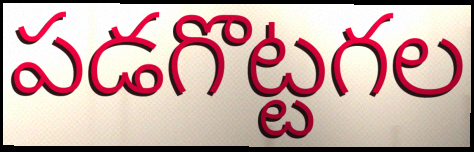
పడగొట్టగల